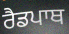
ਰੈਡਪਾਥ